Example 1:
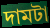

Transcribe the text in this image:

দামটা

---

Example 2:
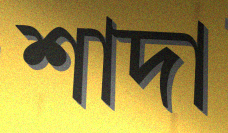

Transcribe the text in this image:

শাদা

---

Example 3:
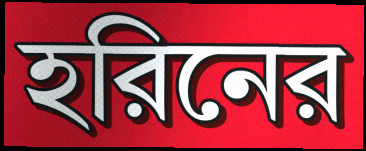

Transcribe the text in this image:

হরিনের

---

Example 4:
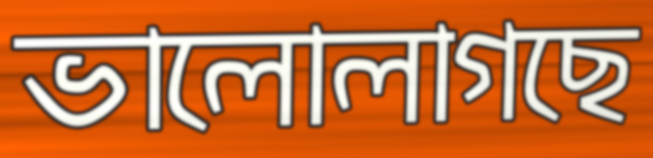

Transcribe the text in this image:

ভালোলাগছে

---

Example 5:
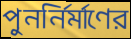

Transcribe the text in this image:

পুনর্নির্মাণের